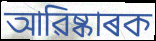
আৱিষ্কাৰক